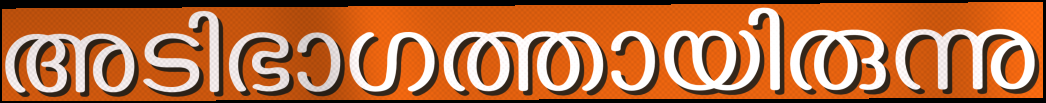
അടിഭാഗത്തായിരുന്നു